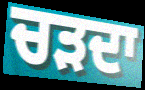
ਚੜਦਾ